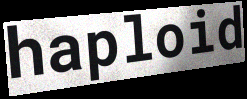
haploid